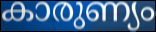
കാരുണ്യം